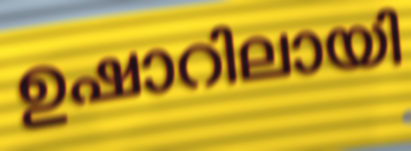
ഉഷാറിലായി